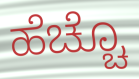
ಹೆಚ್ಚೊ